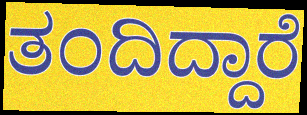
ತಂದಿದ್ದಾರೆ